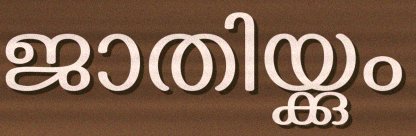
ജാതിയ്ക്കും